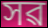
সৱ